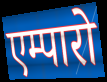
एम्पारो